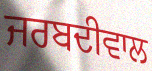
ਜਰਬਦੀਵਾਲ